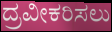
ದ್ರವೀಕರಿಸಲು